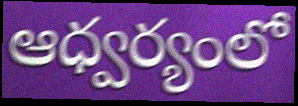
ఆధ్వర్యంలో